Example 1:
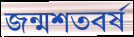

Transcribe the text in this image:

জন্মশতবর্ষ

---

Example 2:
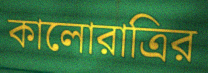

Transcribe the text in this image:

কালোরাত্রির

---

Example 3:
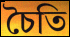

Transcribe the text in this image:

চৈতি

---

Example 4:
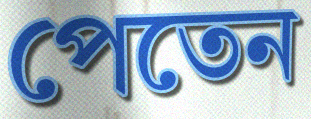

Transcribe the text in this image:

পেতেন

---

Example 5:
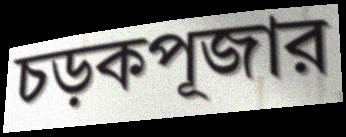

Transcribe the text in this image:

চড়কপূজার